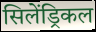
सिलेंड्रिकल